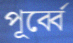
পূৰ্ব্বে